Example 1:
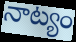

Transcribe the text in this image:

నాట్యం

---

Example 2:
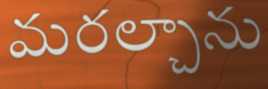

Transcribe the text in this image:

మరల్చాను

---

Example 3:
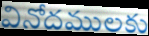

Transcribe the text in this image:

వినోదములకు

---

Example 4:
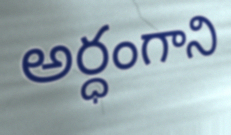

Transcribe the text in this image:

అర్ధంగాని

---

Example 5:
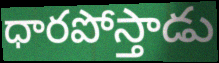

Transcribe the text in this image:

ధారపోస్తాడు